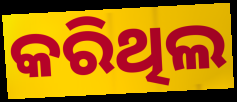
କରିଥିଲ